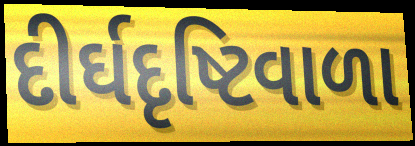
દીર્ઘદૃષ્ટિવાળા